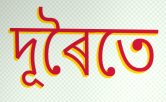
দূৰৈতে